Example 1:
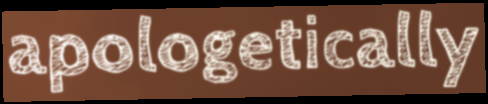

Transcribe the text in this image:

apologetically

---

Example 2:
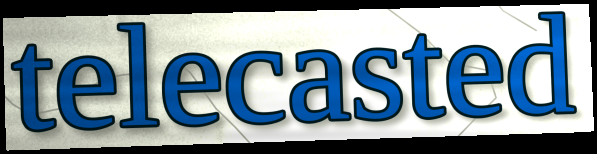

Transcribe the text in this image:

telecasted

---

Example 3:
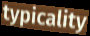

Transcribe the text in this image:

typicality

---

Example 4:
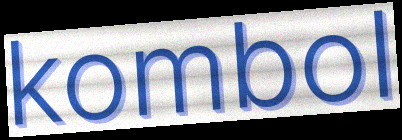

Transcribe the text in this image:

kombol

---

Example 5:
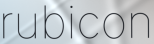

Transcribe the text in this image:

rubicon